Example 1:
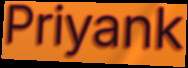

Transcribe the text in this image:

Priyank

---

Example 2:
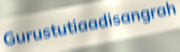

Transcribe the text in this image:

Gurustutiaadisangrah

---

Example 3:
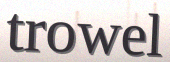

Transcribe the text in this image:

trowel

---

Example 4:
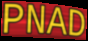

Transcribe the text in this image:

PNAD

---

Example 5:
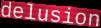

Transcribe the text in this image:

delusion